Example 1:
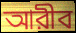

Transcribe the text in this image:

আরীব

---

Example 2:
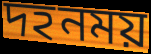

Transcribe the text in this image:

দহনময়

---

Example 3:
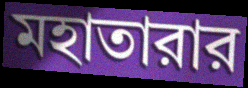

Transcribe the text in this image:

মহাতারার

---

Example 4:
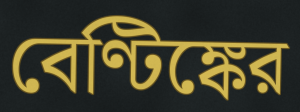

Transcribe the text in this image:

বেণ্টিঙ্কের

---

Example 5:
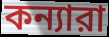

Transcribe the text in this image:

কন্যারা